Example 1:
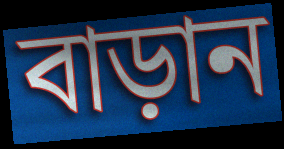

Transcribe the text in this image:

বাড়ান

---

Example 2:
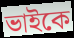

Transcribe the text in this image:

ভাইকে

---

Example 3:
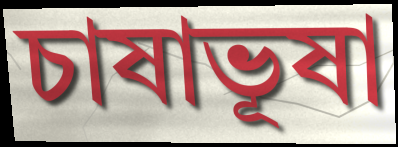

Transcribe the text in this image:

চাষাভূষা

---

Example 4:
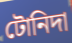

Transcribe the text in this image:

টোনিদা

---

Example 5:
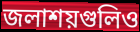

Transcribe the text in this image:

জলাশয়গুলিও